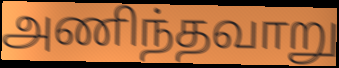
அணிந்தவாறு